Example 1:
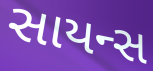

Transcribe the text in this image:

સાયન્સ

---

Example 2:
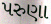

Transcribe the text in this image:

પરુણા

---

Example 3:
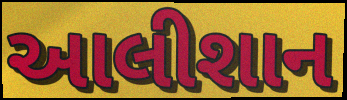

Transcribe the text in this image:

આલીશાન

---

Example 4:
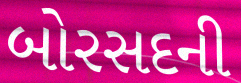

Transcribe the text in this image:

બોરસદની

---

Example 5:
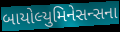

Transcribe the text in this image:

બાયોલ્યુમિનેસન્સના